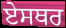
ਏਸਥਰ